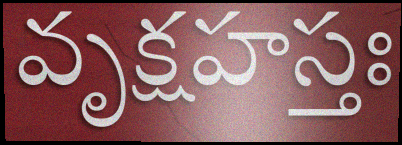
వృక్షహస్తః